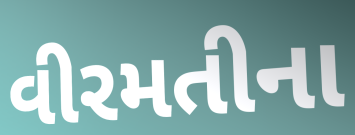
વીરમતીના